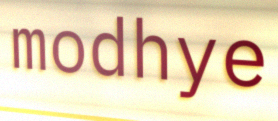
modhye